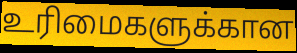
உரிமைகளுக்கான